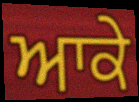
ਆਕੇ